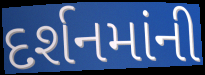
દર્શનમાંની